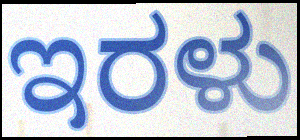
ಇರಳು